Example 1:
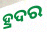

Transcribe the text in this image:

ହ୍ରଦର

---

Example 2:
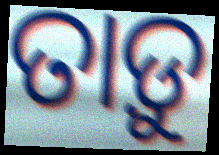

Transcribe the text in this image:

ତାଡ଼ୁ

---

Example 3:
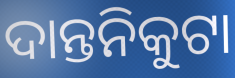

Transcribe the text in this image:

ଦାନ୍ତନିକୁଟା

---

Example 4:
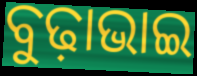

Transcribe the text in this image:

ବୁଢ଼ାଭାଇ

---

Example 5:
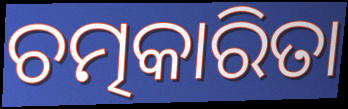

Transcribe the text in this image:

ଚତ୍ମକାରିତା